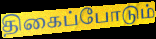
திகைப்போடும்